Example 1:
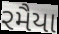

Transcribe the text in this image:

રમૈયા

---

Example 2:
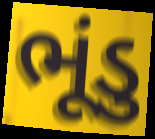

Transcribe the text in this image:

ભૂંડુ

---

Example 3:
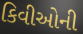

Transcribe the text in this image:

કિવીઓની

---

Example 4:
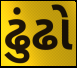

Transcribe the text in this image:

ઢુંઢો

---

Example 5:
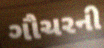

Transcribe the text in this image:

ગૌચરની